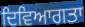
ਦਿਵਿਆਗਤਾ